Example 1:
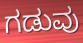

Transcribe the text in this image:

ಗಡುವು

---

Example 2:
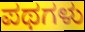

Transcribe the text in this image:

ಪಥಗಳು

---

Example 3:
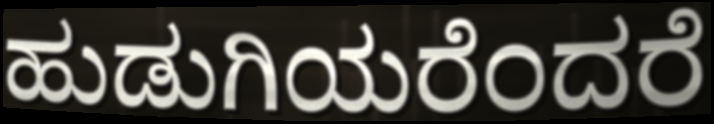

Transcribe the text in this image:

ಹುಡುಗಿಯರೆಂದರೆ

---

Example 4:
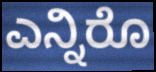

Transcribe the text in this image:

ಎನ್ನಿರೊ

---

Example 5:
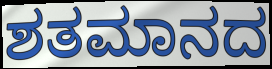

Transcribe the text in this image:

ಶತಮಾನದ